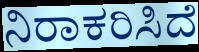
ನಿರಾಕರಿಸಿದೆ